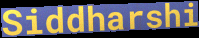
Siddharshi